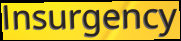
Insurgency